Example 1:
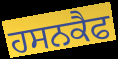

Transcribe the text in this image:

ਹਸਨਕੈਫ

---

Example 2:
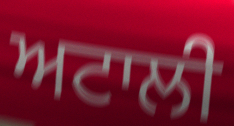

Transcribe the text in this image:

ਅਟਾਲੀ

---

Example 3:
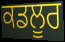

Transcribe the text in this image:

ਕਡਲੂਰ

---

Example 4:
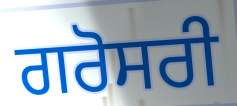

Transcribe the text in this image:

ਗਰੋਸਰੀ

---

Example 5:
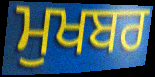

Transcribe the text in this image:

ਮੁਖਬਰ